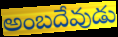
అంబదేవుడు